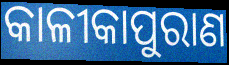
କାଳୀକାପୁରାଣ